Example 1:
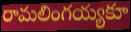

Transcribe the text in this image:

రామలింగయ్యకూ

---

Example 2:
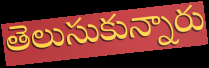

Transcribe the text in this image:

తెలుసుకున్నారు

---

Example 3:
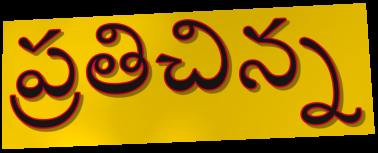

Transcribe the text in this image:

ప్రతిచిన్న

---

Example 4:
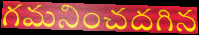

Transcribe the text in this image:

గమనించదగిన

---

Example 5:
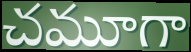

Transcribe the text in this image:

చమూగా